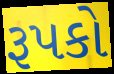
રૂપકો